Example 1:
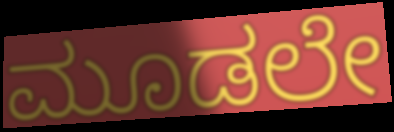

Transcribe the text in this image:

ಮೂಡಲೇ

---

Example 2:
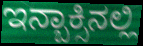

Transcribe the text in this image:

ಇನ್ಬಾಕ್ಸಿನಲ್ಲಿ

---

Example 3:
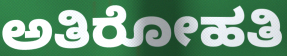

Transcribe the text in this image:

ಅತಿರೋಹತಿ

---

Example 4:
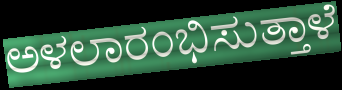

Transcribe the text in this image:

ಅಳಲಾರಂಭಿಸುತ್ತಾಳೆ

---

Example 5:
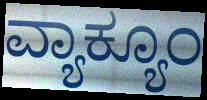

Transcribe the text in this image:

ವ್ಯಾಕ್ಯೂಂ